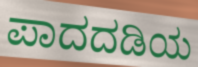
ಪಾದದಡಿಯ